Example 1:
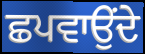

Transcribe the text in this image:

ਛਪਵਾਉਂਦੇ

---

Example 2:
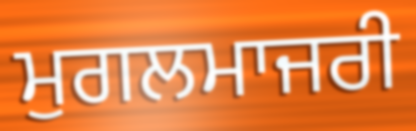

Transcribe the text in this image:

ਮੁਗਲਮਾਜਰੀ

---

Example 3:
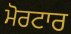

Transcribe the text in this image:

ਮੋਰਟਾਰ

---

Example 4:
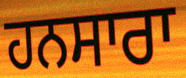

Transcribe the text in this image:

ਹਨਸਾਰਾ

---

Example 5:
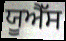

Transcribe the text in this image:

ਯੂਐੱਸ